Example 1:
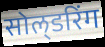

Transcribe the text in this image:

सोल्डरिंग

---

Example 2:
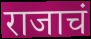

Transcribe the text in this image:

राजाचं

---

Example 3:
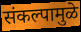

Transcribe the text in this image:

संकल्पामुळे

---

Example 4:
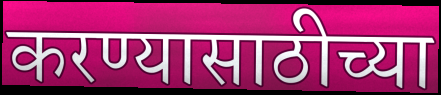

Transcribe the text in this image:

करण्यासाठीच्या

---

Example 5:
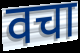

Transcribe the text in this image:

वचा